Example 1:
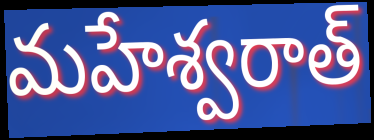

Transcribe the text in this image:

మహేశ్వరాత్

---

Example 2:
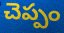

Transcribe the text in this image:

చెప్పం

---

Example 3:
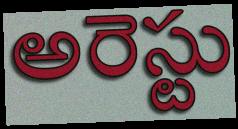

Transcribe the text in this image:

అరెస్టు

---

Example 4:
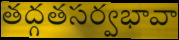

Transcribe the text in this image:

తద్గతసర్వభావా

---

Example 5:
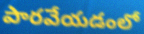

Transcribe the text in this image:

పారవేయడంలో